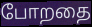
போறதை